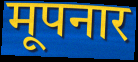
मूपनार